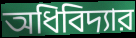
অধিবিদ্যার